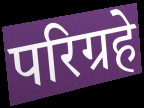
परिग्रहे